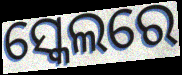
ସ୍କେଲରେ